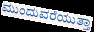
ಮುಂದುವರೆಯುತ್ತಾ